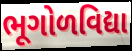
ભૂગોળવિદ્યા